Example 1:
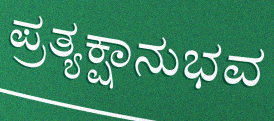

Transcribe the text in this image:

ಪ್ರತ್ಯಕ್ಷಾನುಭವ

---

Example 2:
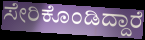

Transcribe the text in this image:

ಸೇರಿಕೊಂಡಿದ್ದಾರೆ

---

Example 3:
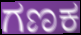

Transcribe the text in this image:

ಗಣಕ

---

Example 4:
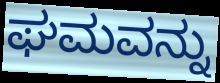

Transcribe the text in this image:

ಘಮವನ್ನು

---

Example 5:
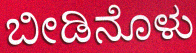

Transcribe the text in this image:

ಬೀಡಿನೊಳು